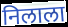
निलाला